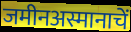
जमीनअस्मानाचें